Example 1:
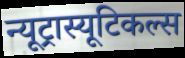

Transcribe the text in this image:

न्यूट्रास्यूटिकल्स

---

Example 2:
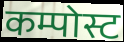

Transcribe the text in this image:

कम्पोस्ट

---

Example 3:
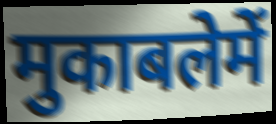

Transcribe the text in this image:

मुकाबलेमें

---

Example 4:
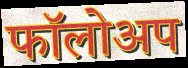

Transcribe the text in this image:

फॉलोअप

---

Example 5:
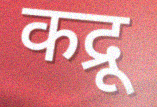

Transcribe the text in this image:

कद्रू